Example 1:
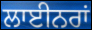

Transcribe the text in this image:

ਲਾਈਨਰਾਂ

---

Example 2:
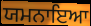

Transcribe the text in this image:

ਯਮਨਾਇਆ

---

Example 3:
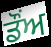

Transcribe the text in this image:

ਡੌਂਅ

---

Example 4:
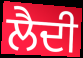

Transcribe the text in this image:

ਲੈਦੀ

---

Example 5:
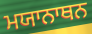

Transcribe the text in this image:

ਮਯਾਨਾਥਨ